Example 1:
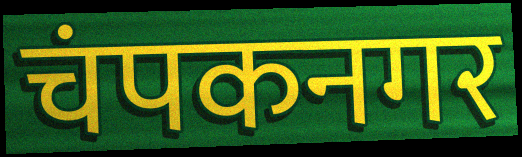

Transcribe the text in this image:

चंपकनगर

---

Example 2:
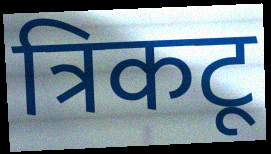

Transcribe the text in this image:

त्रिकटू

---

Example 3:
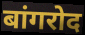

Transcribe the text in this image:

बांगरोद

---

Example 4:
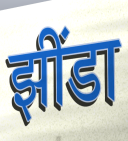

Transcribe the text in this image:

झींडा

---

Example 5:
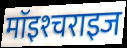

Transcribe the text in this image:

मॉइश्चराइज